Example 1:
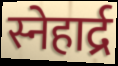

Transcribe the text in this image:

स्नेहार्द्र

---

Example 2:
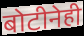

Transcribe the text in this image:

बोटीनेही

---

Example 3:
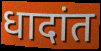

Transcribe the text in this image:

धादांत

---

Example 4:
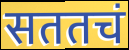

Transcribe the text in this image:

सततचं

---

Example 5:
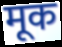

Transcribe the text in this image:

मूक